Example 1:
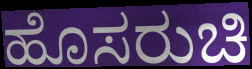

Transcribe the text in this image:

ಹೊಸರುಚಿ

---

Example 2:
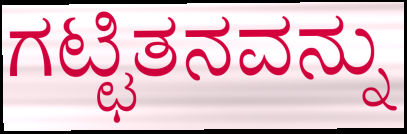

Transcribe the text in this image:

ಗಟ್ಟಿತನವನ್ನು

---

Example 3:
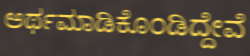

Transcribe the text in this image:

ಅರ್ಥಮಾಡಿಕೊಂಡಿದ್ದೇವೆ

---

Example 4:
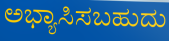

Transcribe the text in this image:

ಅಭ್ಯಾಸಿಸಬಹುದು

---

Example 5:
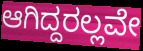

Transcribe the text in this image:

ಆಗಿದ್ದರಲ್ಲವೇ